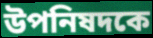
উপনিষদকে